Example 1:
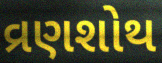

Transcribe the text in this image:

વ્રણશોથ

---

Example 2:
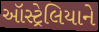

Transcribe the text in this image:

ઑસ્ટ્રેલિયાને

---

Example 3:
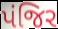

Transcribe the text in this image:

પંજિર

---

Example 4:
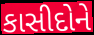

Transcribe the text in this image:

કાસીદોને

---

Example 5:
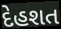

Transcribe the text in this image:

દેહશત